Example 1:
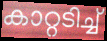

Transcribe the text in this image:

കാറ്റടിച്ച്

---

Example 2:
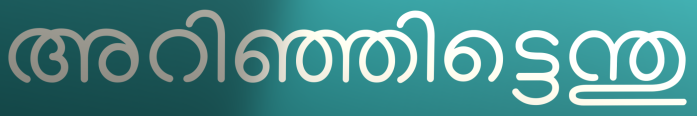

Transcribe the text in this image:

അറിഞ്ഞിട്ടെന്തു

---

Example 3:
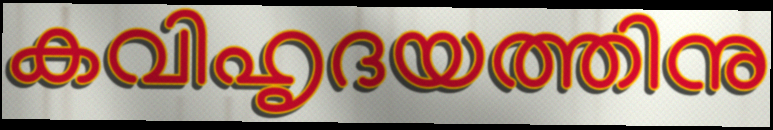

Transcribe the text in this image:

കവിഹൃദയത്തിനു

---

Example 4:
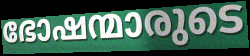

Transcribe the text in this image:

ഭോഷന്മാരുടെ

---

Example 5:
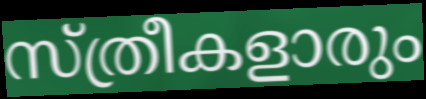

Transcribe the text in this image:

സ്ത്രീകളാരും